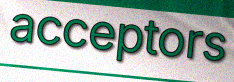
acceptors